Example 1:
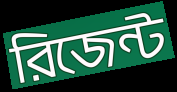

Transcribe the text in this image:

রিজেন্ট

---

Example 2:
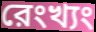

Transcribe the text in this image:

রেংখ্যং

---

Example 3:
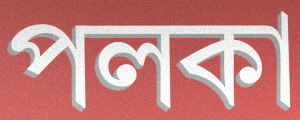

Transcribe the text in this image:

পলকা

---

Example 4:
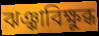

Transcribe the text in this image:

ঝঞ্ঝাবিক্ষুব্ধ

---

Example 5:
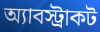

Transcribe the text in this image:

অ্যাবস্ট্রাকট